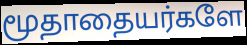
மூதாதையர்களே